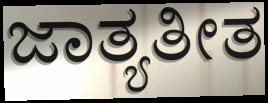
ಜಾತ್ಯತೀತ